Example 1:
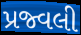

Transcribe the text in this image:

પ્રજ્વલી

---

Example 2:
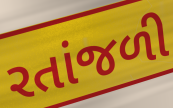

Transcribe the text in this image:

રતાંજળી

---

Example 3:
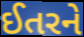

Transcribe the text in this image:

ઈતરને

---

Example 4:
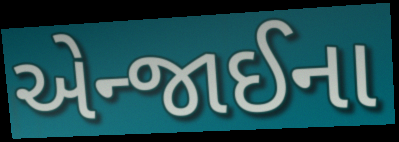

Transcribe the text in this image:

એન્જાઈના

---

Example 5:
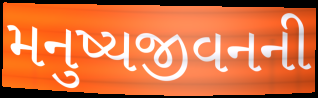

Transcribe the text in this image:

મનુષ્યજીવનની